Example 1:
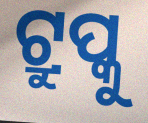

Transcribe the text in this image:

ଟ୍ରୁପ୍କୁ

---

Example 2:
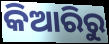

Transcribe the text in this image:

କିଆରିରୁ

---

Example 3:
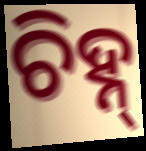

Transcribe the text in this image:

ଚିହ୍ନ୍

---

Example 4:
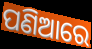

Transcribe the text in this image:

ପଣିଆରେ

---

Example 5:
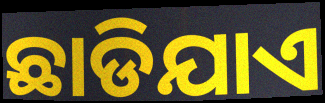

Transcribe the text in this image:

ଛାଡିଯାଏ